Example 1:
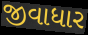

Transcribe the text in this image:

જીવાધાર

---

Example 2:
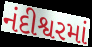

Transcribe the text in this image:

નંદીશ્વરમાં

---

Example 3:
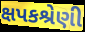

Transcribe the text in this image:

ક્ષપકશ્રેણી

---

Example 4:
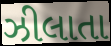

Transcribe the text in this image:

ઝીલાતા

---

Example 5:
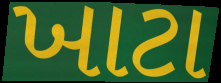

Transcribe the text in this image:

ખાટા